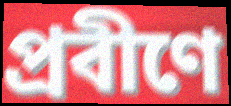
প্রবীণে